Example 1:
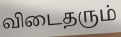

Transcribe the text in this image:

விடைதரும்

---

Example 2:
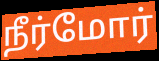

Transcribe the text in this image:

நீர்மோர்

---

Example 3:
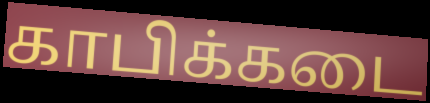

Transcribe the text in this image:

காபிக்கடை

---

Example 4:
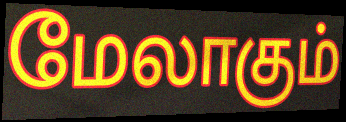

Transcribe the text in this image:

மேலாகும்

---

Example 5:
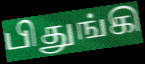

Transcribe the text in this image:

பிதுங்கி